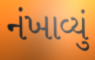
નંખાવ્યું